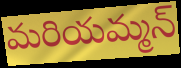
మరియమ్మన్